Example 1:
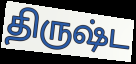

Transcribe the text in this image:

திருஷ்ட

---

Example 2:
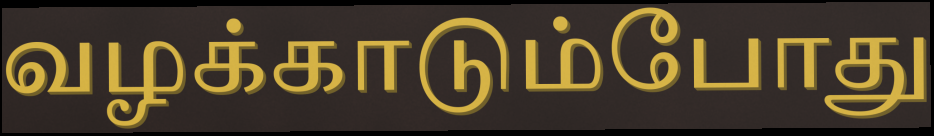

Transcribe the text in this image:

வழக்காடும்போது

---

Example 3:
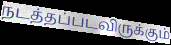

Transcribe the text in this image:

நடத்தப்படவிருக்கும்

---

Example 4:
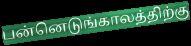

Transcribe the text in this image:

பன்னெடுங்காலத்திற்கு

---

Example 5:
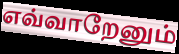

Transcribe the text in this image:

எவ்வாறேனும்